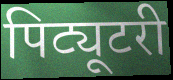
पिट्यूटरी